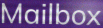
Mailbox